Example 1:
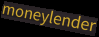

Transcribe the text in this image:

moneylender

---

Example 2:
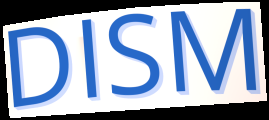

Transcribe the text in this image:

DISM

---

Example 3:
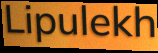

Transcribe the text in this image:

Lipulekh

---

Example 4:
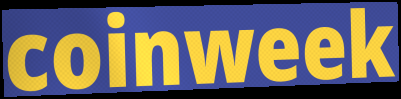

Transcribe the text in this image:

coinweek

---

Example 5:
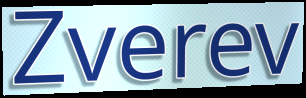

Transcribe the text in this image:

Zverev